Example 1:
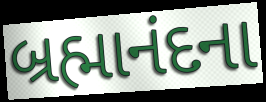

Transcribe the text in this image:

બ્રહ્માનંદના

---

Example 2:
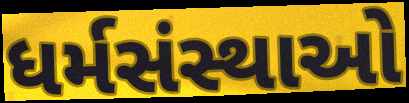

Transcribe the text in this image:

ધર્મસંસ્થાઓ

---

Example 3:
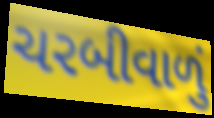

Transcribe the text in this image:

ચરબીવાળું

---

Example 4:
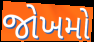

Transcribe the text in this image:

જોખમો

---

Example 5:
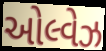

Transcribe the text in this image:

ઓલ્વેઝ